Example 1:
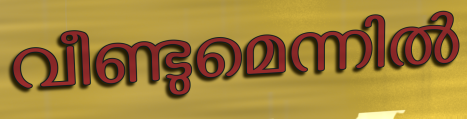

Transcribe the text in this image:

വീണ്ടുമെന്നിൽ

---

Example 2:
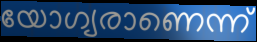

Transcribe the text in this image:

യോഗ്യരാണെന്ന്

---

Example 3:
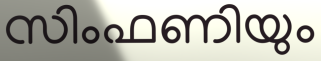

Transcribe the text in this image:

സിംഫണിയും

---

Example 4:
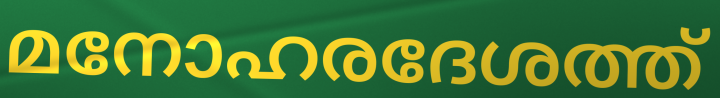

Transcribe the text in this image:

മനോഹരദേശത്ത്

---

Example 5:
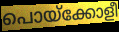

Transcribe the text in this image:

പൊയ്ക്കോളീ